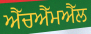
ਐੱਚਐੱਮਐੱਲ